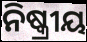
ନିଷ୍କ୍ରୀୟ